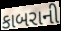
કાબરાની